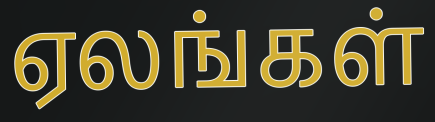
ஏலங்கள்